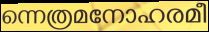
ന്നെത്രമനോഹരമീ